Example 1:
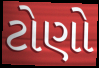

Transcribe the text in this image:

ટોણો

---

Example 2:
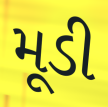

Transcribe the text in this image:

મૂડી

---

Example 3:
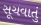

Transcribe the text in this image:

સૂચવાતું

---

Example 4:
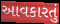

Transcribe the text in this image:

આવકારતું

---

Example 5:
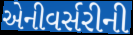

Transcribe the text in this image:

એનીવર્સરીની